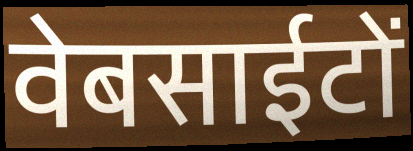
वेबसाईटों